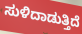
ಸುಳಿದಾಡುತ್ತಿದೆ